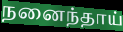
நனைந்தாய்